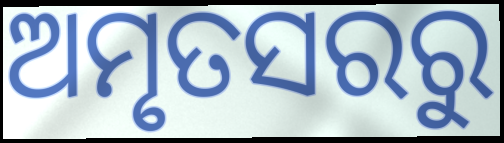
ଅମୃତସରରୁ